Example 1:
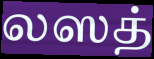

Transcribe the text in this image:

லஸத்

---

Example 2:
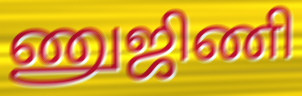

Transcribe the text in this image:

ணுஜிணி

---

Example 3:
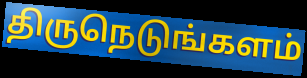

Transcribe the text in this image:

திருநெடுங்களம்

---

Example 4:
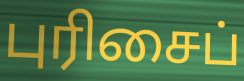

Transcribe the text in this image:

புரிசைப்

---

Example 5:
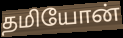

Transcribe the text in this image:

தமியோன்